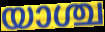
യാശ്ച